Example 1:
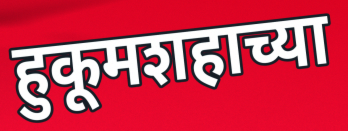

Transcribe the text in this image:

हुकूमशहाच्या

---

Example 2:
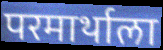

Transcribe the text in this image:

परमार्थाला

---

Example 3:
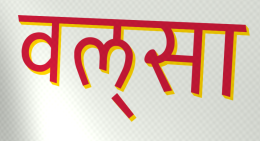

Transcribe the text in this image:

वल्सा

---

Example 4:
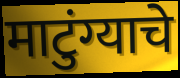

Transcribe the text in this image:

माटुंग्याचे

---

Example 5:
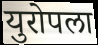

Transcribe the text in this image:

युरोपला